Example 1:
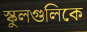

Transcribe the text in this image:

স্কুলগুলিকে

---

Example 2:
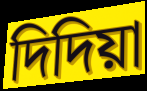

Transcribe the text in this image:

দিদিয়া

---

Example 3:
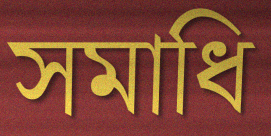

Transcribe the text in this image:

সমাধি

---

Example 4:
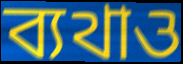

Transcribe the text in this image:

ব্যথাও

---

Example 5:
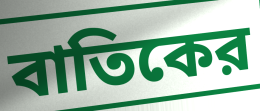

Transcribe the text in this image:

বাতিকের